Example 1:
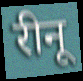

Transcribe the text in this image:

रीनू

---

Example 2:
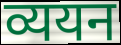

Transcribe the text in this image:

व्ययन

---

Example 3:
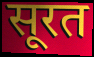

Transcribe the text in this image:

सूरत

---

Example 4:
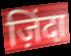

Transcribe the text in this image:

ज़िंदा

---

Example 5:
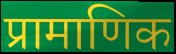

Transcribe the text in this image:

प्रामाणिक